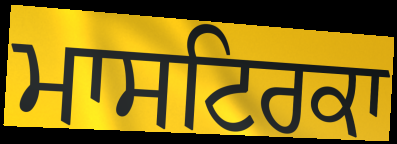
ਮਾਸਟਿਰਕਾ